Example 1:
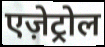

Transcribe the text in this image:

एज़ेट्रोल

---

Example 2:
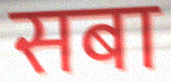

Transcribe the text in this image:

सबा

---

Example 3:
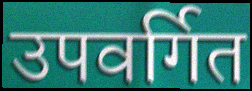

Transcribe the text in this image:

उपवर्गित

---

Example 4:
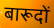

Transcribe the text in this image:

बारूदों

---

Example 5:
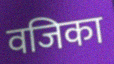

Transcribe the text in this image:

वजिका